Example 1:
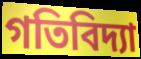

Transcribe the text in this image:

গতিবিদ্যা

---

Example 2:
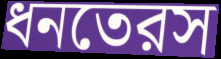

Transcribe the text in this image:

ধনতেরস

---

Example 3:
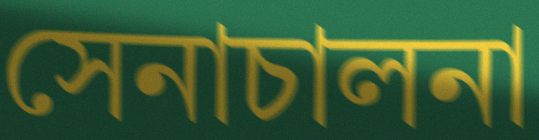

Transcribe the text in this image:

সেনাচালনা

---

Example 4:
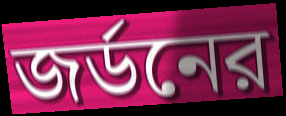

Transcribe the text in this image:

জর্ডনের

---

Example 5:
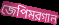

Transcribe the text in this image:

জেপিমরগান